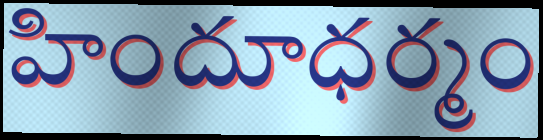
హిందూధర్మం